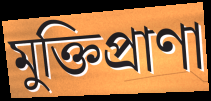
মুক্তিপ্রাণা